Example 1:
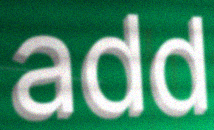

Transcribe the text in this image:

add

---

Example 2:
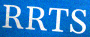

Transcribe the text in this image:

RRTS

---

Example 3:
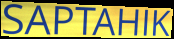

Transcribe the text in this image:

SAPTAHIK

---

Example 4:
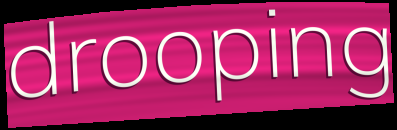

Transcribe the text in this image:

drooping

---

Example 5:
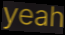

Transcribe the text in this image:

yeah